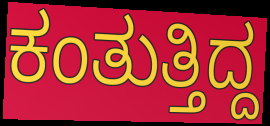
ಕಂತುತ್ತಿದ್ದ